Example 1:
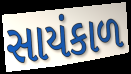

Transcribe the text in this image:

સાયંકાળ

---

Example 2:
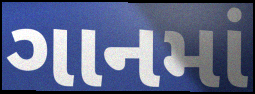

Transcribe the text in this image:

ગાનમાં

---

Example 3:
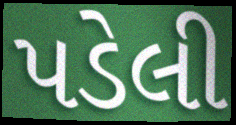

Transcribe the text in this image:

પડેલી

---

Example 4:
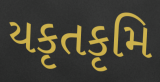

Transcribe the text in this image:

યકૃતકૃમિ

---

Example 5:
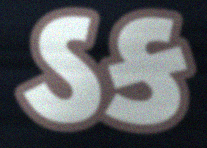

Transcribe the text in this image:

ડક